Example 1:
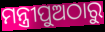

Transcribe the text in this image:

ମନ୍ତ୍ରୀପୁଅଠାରୁ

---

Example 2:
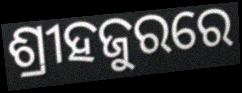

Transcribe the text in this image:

ଶ୍ରୀହଜୁରରେ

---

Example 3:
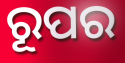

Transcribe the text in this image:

ରୂପର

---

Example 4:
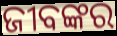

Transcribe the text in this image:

ଜୀବଙ୍କର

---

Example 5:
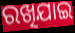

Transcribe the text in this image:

ରଖିଯାଇ